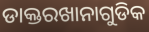
ଡାକ୍ତରଖାନାଗୁଡିକ